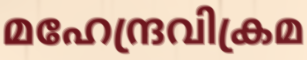
മഹേന്ദ്രവിക്രമ